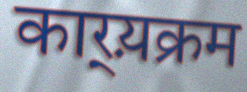
कार्य़क्रम